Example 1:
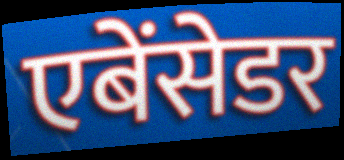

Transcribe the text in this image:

एबेंसेडर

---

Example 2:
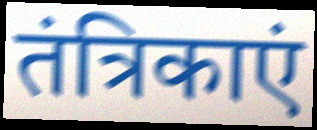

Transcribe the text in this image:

तंत्रिकाएं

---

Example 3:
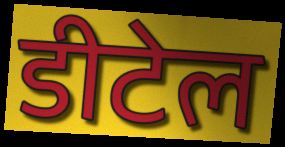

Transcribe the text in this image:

डीटेल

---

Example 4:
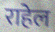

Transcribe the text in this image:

राहेल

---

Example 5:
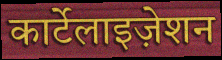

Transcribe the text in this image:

कार्टेलाइज़ेशन